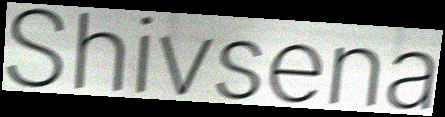
Shivsena